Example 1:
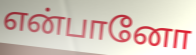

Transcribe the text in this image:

என்பானோ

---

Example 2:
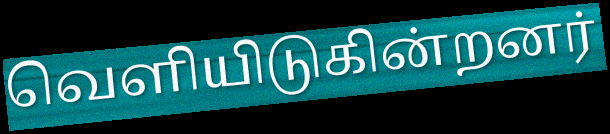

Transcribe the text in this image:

வெளியிடுகின்றனர்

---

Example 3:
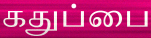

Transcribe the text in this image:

கதுப்பை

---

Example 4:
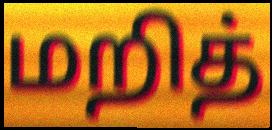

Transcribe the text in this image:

மறித்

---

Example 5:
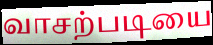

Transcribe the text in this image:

வாசற்படியை